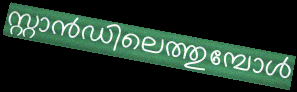
സ്റ്റാൻഡിലെത്തുമ്പോൾ